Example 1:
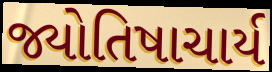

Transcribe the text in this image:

જ્યોતિષાચાર્ય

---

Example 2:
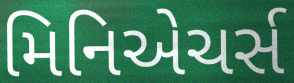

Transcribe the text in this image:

મિનિએચર્સ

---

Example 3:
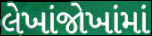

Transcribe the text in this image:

લેખાંજોખાંમાં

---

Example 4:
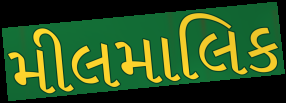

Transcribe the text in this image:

મીલમાલિક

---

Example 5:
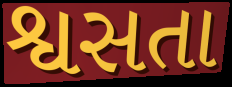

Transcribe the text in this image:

શ્વસતા